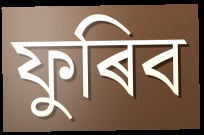
ফুৰিব